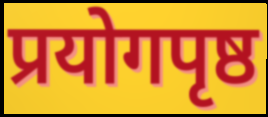
प्रयोगपृष्ठ